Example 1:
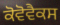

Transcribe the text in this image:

ਕੋਵੋਵੈਕਸ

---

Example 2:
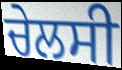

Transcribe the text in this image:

ਚੇਲਸੀ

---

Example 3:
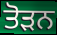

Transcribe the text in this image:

ਤੋੜਨ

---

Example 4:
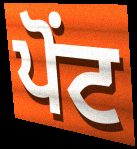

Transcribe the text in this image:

ਪੋਂਟ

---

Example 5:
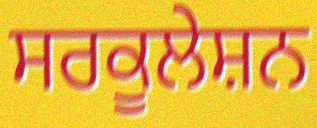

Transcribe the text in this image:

ਸਰਕੂਲੇਸ਼ਨ